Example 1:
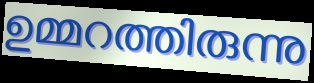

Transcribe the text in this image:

ഉമ്മറത്തിരുന്നു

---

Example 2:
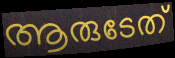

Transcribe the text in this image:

ആരുടേത്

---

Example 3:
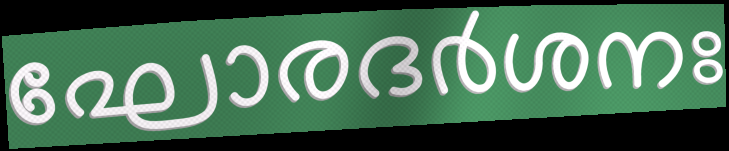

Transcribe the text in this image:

ഘോരദർശനഃ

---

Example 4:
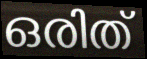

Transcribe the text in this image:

ഒരിത്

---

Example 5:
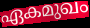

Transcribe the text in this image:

ഏകമുഖം